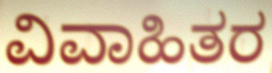
ವಿವಾಹಿತರ